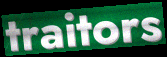
traitors